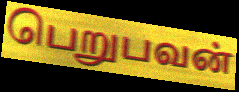
பெறுபவன்